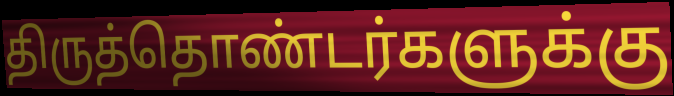
திருத்தொண்டர்களுக்கு